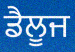
ਡੈਲੂਜ